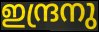
ഇന്ദ്രനു